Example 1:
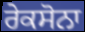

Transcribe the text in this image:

ਰੇਕਸੋਨਾ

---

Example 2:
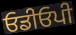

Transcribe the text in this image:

ਓਡੀਓਪੀ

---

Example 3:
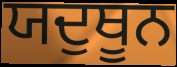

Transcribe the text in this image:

ਯਦੁਥੂਨ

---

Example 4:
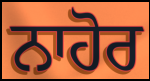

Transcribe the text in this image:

ਨਾਹੋਰ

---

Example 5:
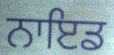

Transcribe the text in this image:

ਨਾਇਡ